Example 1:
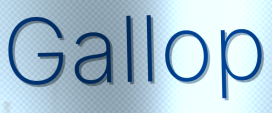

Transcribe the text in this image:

Gallop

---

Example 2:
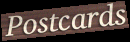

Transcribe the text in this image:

Postcards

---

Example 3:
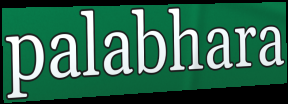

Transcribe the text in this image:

palabhara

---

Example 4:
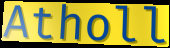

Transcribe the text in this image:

Atholl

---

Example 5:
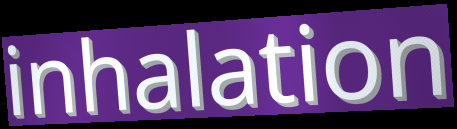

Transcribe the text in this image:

inhalation